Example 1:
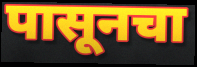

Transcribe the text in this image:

पासूनचा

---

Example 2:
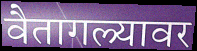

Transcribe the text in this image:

वैतागल्यावर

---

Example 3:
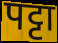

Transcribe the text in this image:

पट्टा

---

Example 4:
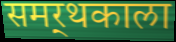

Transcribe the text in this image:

समर्थकाला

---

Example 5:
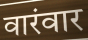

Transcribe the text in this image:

वारंवार